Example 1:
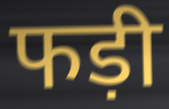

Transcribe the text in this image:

फड़ी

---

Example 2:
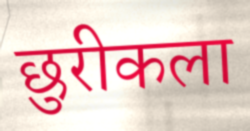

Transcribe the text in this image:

छुरीकला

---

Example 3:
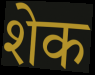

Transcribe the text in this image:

शेक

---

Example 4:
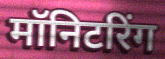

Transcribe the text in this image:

मॉनिटरिंग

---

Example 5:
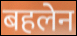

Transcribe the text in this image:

बहलेन